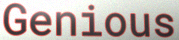
Genious